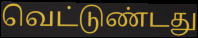
வெட்டுண்டது